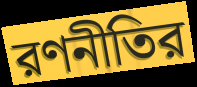
রণনীতির